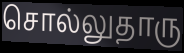
சொல்லுதாரு